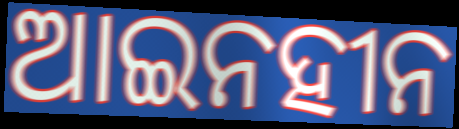
ଆଇନହୀନ